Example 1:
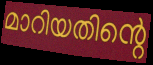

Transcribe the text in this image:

മാറിയതിന്റെ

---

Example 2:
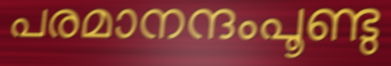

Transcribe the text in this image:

പരമാനന്ദംപൂണ്ടു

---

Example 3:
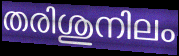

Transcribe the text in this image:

തരിശുനിലം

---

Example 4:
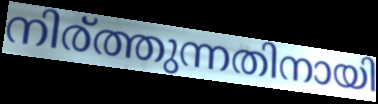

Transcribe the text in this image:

നിര്ത്തുന്നതിനായി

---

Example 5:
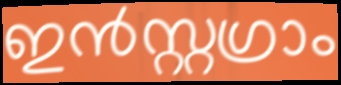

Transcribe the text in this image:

ഇൻസ്റ്റഗ്രാം